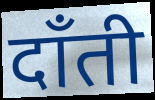
दाँती